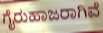
ಗೈರುಹಾಜರಾಗಿವೆ